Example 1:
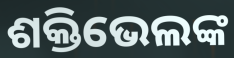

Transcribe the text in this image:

ଶକ୍ତିଭେଲଙ୍କ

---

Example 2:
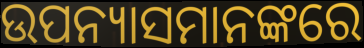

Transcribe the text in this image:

ଉପନ୍ୟାସମାନଙ୍କରେ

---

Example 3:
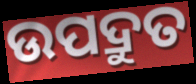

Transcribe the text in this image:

ଉପଦ୍ରୁତ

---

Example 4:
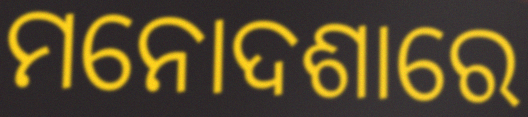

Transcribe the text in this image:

ମନୋଦଶାରେ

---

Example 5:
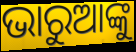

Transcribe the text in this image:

ଭାରୁଆଙ୍କୁ